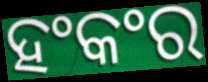
ହଂକଂର